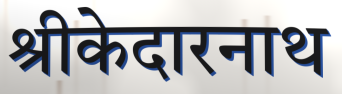
श्रीकेदारनाथ